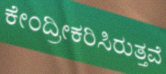
ಕೇಂದ್ರೀಕರಿಸಿರುತ್ತವೆ